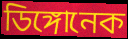
ডিঙ্গোনেক